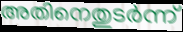
അതിനെതുടർന്ന്